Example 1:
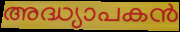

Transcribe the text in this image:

അദ്ധ്യാപകൻ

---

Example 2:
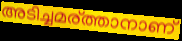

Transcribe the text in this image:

അടിച്ചമര്ത്താനാണ്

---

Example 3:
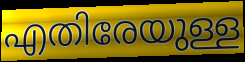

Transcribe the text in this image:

എതിരേയുള്ള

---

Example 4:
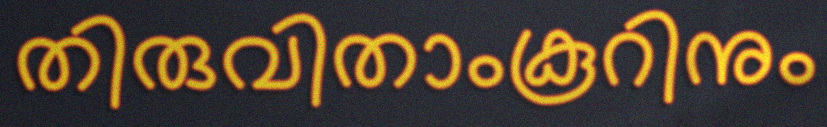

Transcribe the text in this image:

തിരുവിതാംകൂറിനും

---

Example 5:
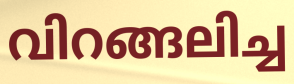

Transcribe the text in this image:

വിറങ്ങലിച്ച